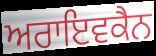
ਅਰਾਇਵਕੈਨ